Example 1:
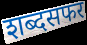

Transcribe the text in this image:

शब्दसफर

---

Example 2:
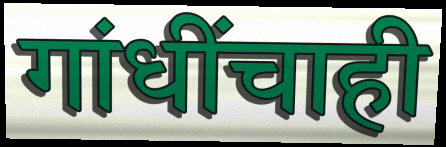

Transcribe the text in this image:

गांधींचाही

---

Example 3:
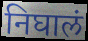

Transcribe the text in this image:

निघालं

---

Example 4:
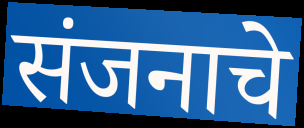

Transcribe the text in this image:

संजनाचे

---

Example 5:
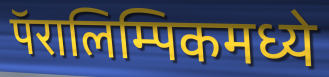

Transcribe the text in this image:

पॅरालिम्पिकमध्ये